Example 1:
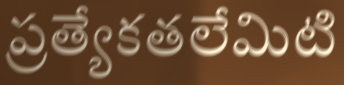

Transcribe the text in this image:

ప్రత్యేకతలేమిటి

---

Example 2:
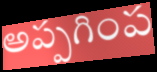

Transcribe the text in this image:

అప్పగింప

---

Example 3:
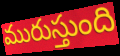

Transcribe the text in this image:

మురుస్తుంది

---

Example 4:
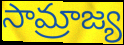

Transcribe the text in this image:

సామ్రాజ్య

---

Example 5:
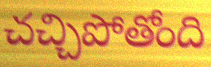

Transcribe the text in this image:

చచ్చిపోతోంది